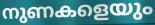
നുണകളെയും